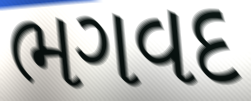
ભગવદ